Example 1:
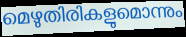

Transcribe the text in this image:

മെഴുതിരികളുമൊന്നും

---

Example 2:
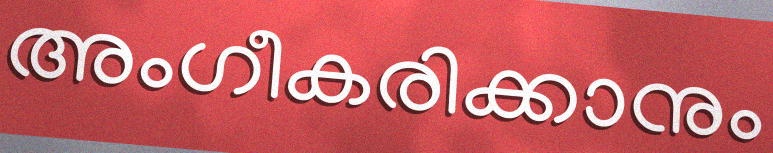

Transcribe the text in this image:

അംഗീകരിക്കാനും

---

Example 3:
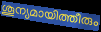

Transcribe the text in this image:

ശൂന്യമായിത്തീരും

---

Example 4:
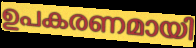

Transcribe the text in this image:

ഉപകരണമായി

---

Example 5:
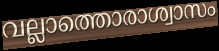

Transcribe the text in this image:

വല്ലാത്തൊരാശ്വാസം